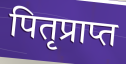
पितृप्राप्त